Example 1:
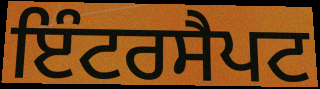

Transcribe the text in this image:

ਇੰਟਰਸੈਪਟ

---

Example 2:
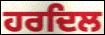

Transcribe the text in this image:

ਹਰਦਿਲ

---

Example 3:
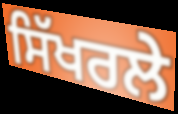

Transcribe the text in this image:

ਸਿੱਖਰਲੇ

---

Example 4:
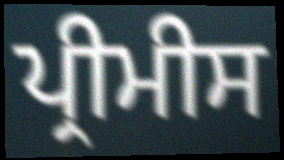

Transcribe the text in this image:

ਪ੍ਰੀਮੀਸ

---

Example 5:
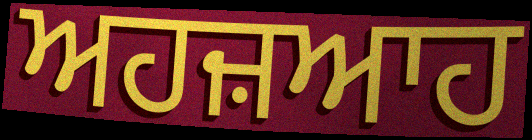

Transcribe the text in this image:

ਅਹਜ਼ਆਹ